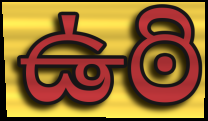
ఉఠి